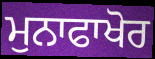
ਮੁਨਾਫਾਖੋਰ